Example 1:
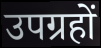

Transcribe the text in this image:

उपग्रहों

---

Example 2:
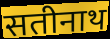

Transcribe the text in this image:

सतीनाथ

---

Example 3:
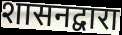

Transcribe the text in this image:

शासनद्वारा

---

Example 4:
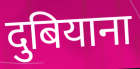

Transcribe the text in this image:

दुबियाना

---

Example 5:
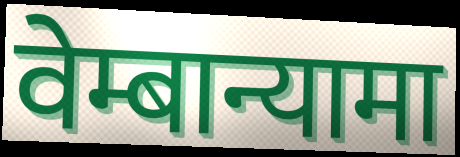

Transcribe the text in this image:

वेम्बान्यामा